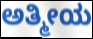
ಅತ್ಮೀಯ